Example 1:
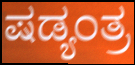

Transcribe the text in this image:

ಷಡ್ಯಂತ್ರ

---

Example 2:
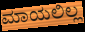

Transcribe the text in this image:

ಮಾಯಲಿಲ್ಲ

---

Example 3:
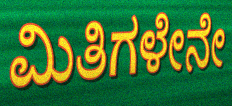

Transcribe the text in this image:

ಮಿತಿಗಳೇನೇ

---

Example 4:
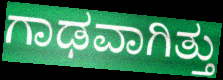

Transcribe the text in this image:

ಗಾಢವಾಗಿತ್ತು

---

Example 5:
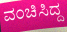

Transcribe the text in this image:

ವಂಚಿಸಿದ್ದ